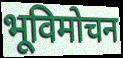
भूविमोचन